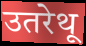
उतरेथू